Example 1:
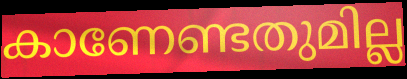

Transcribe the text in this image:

കാണേണ്ടതുമില്ല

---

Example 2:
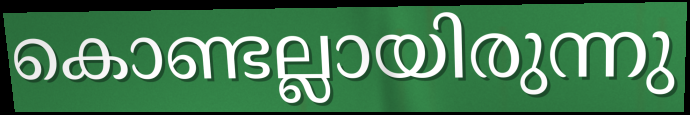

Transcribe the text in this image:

കൊണ്ടല്ലായിരുന്നു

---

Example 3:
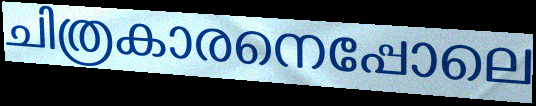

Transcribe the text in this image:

ചിത്രകാരനെപ്പോലെ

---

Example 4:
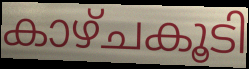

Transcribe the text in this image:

കാഴ്ചകൂടി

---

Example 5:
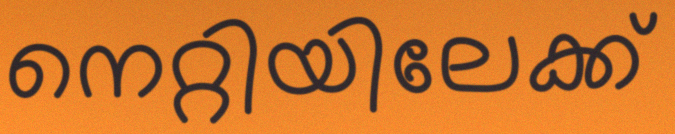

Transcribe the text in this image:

നെറ്റിയിലേക്ക്